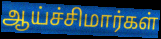
ஆய்ச்சிமார்கள்